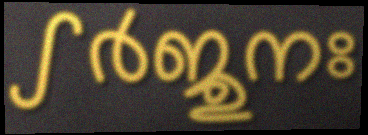
ഽർജുനഃ